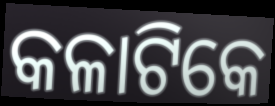
କଳାଟିକେ